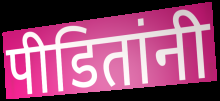
पीडितांनी